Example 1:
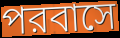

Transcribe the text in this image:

পরবাসে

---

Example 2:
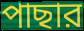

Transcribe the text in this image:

পাছার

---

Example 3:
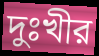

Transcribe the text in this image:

দুঃখীর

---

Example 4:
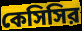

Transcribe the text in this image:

কেসিসির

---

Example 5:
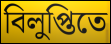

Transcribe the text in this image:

বিলুপ্তিতে